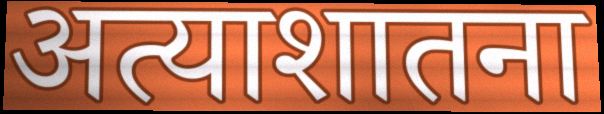
अत्याशातना